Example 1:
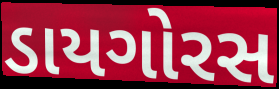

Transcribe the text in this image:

ડાયગોરસ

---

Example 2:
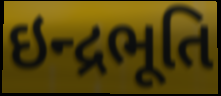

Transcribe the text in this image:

ઇન્દ્રભૂતિ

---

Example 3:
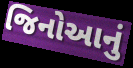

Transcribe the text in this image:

જિનોઆનું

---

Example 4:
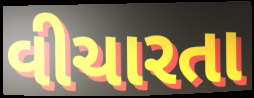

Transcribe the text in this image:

વીચારતા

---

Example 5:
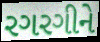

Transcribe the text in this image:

રગરગીને